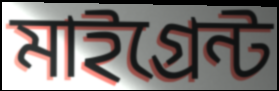
মাইগ্রেন্ট